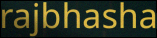
rajbhasha